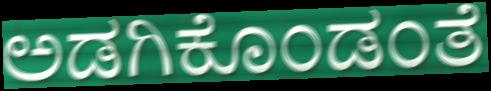
ಅಡಗಿಕೊಂಡಂತೆ